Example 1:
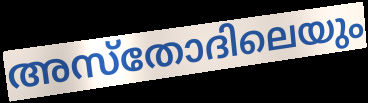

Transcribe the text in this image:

അസ്തോദിലെയും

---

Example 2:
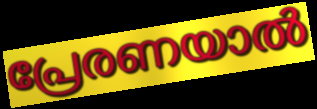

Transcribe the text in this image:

പ്രേരണയാൽ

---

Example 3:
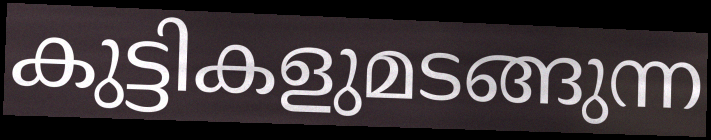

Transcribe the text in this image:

കുട്ടികളുമടങ്ങുന്ന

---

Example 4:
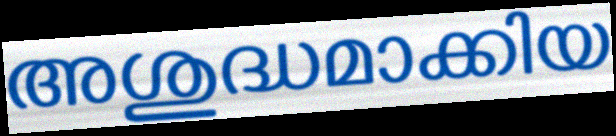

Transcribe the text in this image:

അശുദ്ധമാക്കിയ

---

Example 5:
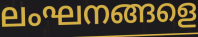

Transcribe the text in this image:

ലംഘനങ്ങളെ